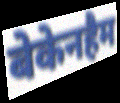
बेकेनहैम